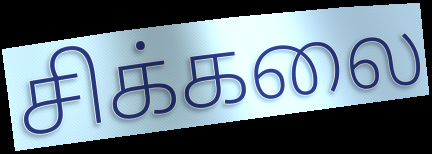
சிக்கலை